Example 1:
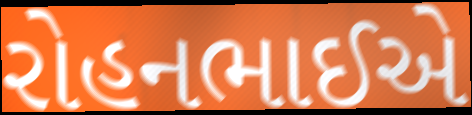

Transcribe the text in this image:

રોહનભાઈએ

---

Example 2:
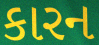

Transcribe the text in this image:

કારન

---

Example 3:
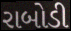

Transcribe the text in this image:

રાબોડી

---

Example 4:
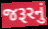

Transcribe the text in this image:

જરૂરનું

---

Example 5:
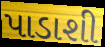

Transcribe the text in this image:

પાડાશી